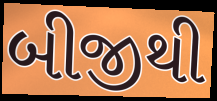
બીજીથી